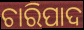
ଚାରିପାଦ